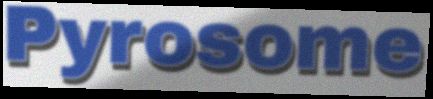
Pyrosome